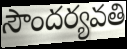
సౌందర్యవతి